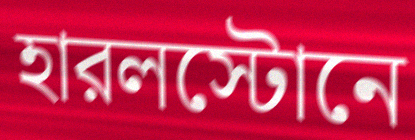
হারলস্টোনে